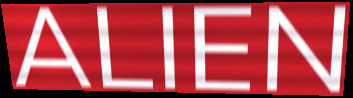
ALIEN